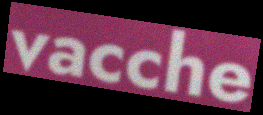
vacche